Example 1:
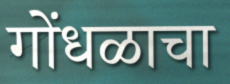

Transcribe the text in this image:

गोंधळाचा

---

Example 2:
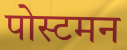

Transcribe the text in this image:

पोस्टमन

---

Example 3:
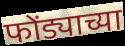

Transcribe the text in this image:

फोंड्याच्या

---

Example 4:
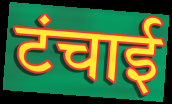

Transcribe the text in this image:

टंचाई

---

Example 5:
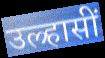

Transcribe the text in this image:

उल्हासीं